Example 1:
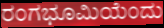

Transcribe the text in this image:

ರಂಗಭೂಮಿಯೆಂದು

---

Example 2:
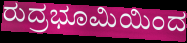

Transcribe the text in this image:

ರುದ್ರಭೂಮಿಯಿಂದ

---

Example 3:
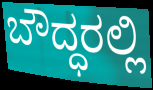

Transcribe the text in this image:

ಬೌದ್ಧರಲ್ಲಿ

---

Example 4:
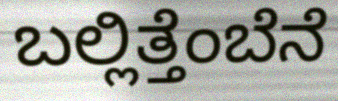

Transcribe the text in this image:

ಬಲ್ಲಿತ್ತೆಂಬೆನೆ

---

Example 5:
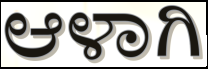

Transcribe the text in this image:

ಆಳಾಗಿ